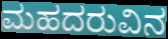
ಮಹದರುವಿನ